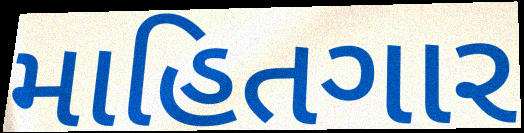
માહિતગાર